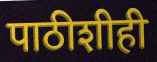
पाठीशीही